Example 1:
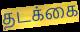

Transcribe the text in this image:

தடக்கை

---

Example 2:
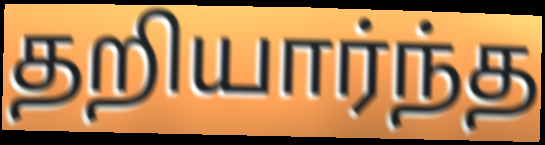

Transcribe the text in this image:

தறியார்ந்த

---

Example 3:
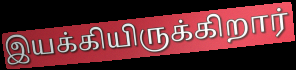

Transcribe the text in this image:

இயக்கியிருக்கிறார்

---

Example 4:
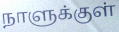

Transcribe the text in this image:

நாளுக்குள்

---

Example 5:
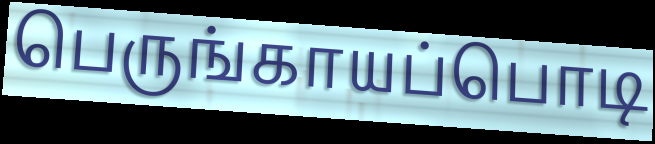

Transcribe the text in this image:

பெருங்காயப்பொடி